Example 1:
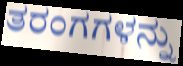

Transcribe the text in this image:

ತರಂಗಗಳನ್ನು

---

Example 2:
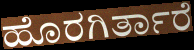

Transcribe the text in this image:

ಹೊರಗಿರ್ತಾರೆ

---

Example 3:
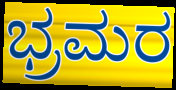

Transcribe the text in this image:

ಭ್ರಮರ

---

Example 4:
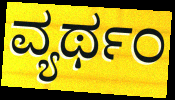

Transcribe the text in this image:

ವ್ಯರ್ಥಂ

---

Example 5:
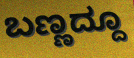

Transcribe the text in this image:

ಬಣ್ಣದ್ದೂ